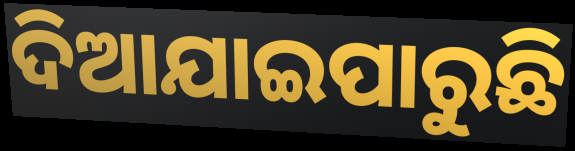
ଦିଆଯାଇପାରୁଛି